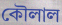
কৌলাল